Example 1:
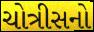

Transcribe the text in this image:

ચોત્રીસનો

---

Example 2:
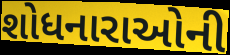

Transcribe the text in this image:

શોધનારાઓની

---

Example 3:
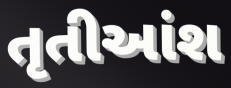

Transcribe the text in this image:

તૃતીઆંશ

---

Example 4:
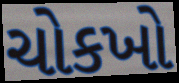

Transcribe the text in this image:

ચોકખો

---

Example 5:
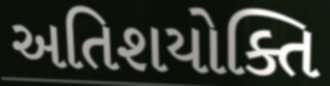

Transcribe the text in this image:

અતિશયોક્તિ